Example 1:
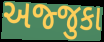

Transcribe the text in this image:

અજ્જુકા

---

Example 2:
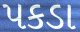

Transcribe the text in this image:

પકડા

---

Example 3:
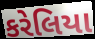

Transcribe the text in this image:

કરેલિયા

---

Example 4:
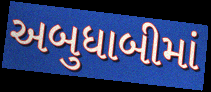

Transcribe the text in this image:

અબુધાબીમાં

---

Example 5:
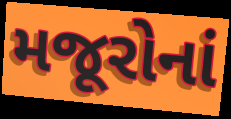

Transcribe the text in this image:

મજૂરોનાં